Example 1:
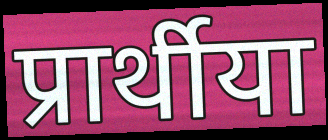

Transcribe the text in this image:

प्रार्थीया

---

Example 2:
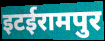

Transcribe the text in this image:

इटईरामपुर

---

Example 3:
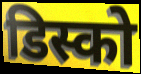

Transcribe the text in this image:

डिस्को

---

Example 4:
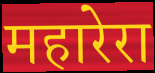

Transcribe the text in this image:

महारेरा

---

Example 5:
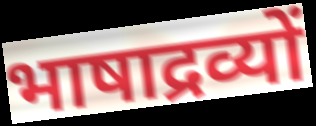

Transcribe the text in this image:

भाषाद्रव्यों